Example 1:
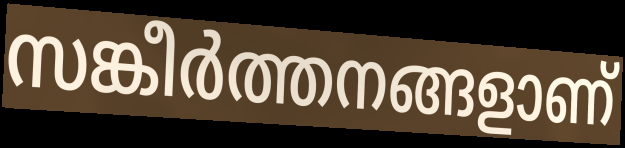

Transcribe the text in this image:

സങ്കീർത്തനങ്ങളാണ്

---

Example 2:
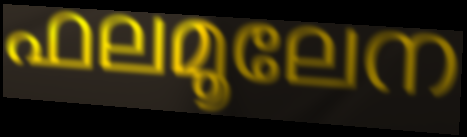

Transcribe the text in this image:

ഫലമൂലേന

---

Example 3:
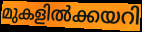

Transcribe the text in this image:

മുകളിൽക്കയറി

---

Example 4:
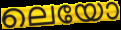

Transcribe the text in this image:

ലെയോ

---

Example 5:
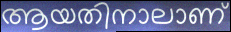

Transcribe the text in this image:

ആയതിനാലാണ്